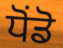
ਧੋਂਡੋ